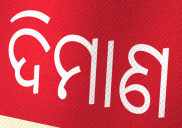
ଦିମାଣ